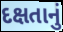
દક્ષતાનું